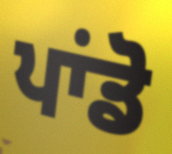
ਪਾਂਡੋ